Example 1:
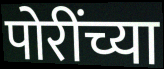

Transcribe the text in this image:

पोरींच्या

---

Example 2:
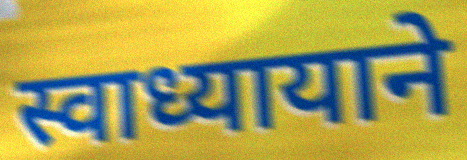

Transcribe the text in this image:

स्वाध्यायाने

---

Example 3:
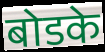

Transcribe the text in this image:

बोडके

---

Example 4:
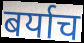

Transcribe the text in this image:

बर्याच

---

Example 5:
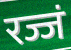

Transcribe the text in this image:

रज्जं